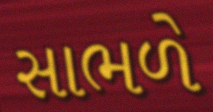
સાભળે